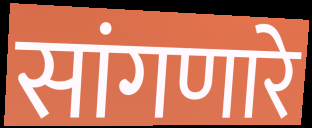
सांगणारे